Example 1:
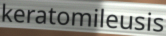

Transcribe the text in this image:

keratomileusis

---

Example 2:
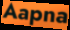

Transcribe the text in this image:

Aapna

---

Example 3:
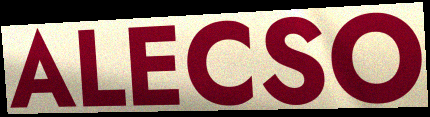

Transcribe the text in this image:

ALECSO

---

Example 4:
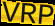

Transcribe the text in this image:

VRP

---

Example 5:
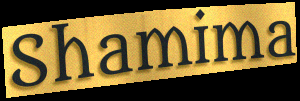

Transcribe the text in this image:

Shamima